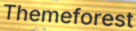
Themeforest